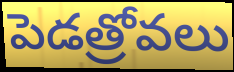
పెడత్రోవలు